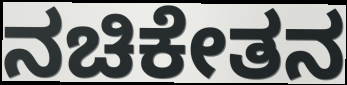
ನಚಿಕೇತನ